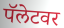
पॅलेटवर